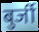
बुर्जी